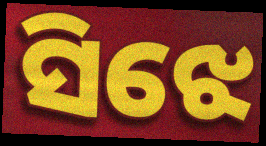
ସିଝେ